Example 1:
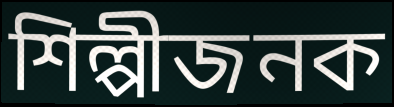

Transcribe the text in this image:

শিল্পীজনক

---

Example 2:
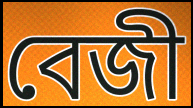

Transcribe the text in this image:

বেজী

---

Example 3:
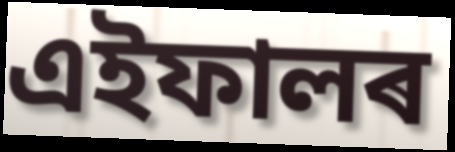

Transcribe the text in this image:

এইফালৰ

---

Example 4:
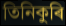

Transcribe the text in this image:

তিনিকুৰি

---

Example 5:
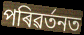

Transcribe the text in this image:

পৰিৱৰ্তনত